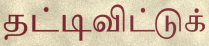
தட்டிவிட்டுக்